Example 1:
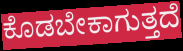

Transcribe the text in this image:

ಕೊಡಬೇಕಾಗುತ್ತದೆ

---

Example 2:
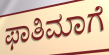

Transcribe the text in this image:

ಫಾತಿಮಾಗೆ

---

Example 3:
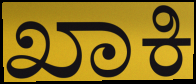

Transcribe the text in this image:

ಖಾಕಿ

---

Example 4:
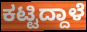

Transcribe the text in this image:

ಕಟ್ಟಿದ್ದಾಳೆ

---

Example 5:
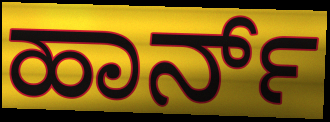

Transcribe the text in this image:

ಹಾರ್ನ್